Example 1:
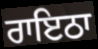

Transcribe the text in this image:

ਰਾਇਠਾ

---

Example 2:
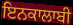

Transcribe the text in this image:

ਇਨਕਾਲਾਬੀ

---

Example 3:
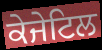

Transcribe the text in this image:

ਕੇਜੇਟਿਲ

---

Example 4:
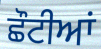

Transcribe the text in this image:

ਛੌਟੀਆਂ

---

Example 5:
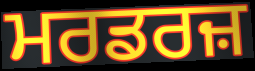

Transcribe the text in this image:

ਮਰਡਰਜ਼